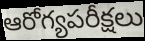
ఆరోగ్యపరీక్షలు